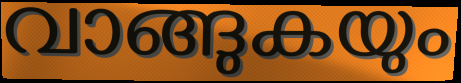
വാങ്ങുകയും